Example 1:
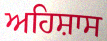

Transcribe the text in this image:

ਅਹਿਸ਼ਾਸ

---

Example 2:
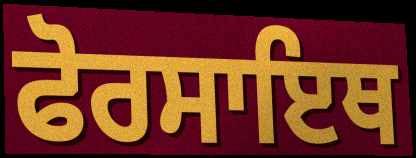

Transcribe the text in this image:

ਫੋਰਸਾਇਥ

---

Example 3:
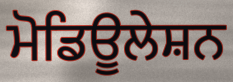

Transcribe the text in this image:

ਮੋਡਿਊਲੇਸ਼ਨ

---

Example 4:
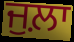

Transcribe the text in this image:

ਜੁਲ਼ਾ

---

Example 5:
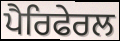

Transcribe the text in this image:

ਪੈਰਿਫੇਰਲ